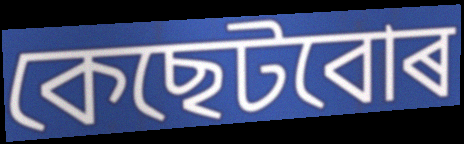
কেছেটবোৰ